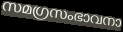
സമഗ്രസംഭാവനാ